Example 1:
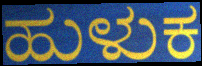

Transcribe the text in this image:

ಹುಳುಕ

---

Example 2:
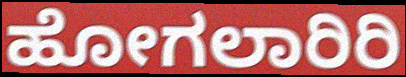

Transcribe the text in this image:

ಹೋಗಲಾರಿರಿ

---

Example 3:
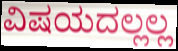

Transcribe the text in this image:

ವಿಷಯದಲ್ಲಲ್ಲ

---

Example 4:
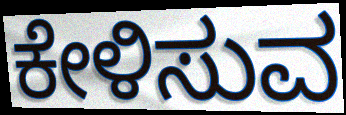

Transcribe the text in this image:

ಕೇಳಿಸುವ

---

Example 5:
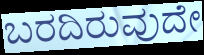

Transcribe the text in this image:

ಬರದಿರುವುದೇ